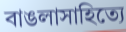
বাঙলাসাহিত্যে